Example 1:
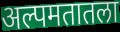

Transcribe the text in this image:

अल्पमतातला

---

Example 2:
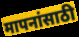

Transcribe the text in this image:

मापनांसाठी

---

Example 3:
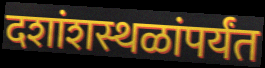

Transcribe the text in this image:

दशांशस्थळांपर्यंत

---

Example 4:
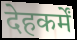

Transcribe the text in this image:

देहकर्में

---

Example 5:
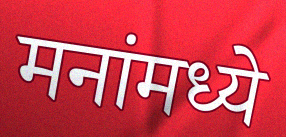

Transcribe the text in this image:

मनांमध्ये